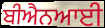
ਬੀਐਨਆਈ